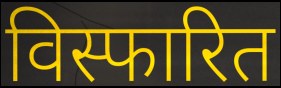
विस्फारित